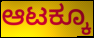
ಆಟಕ್ಕೂ